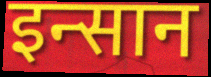
इन्सान